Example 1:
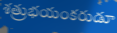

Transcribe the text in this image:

శత్రుభయంకరుడూ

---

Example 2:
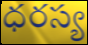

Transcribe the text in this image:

ధరస్య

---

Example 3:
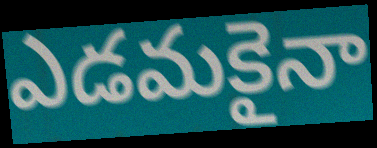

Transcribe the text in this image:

ఎడమకైనా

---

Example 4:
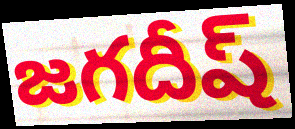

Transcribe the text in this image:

జగదీష్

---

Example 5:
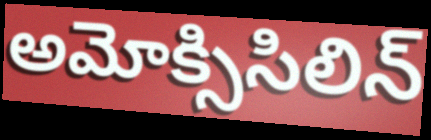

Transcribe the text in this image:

అమోక్సిసిలిన్